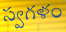
స్వగళం